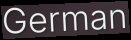
German